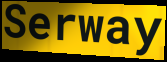
Serway